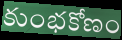
కుంభకోణం